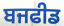
ਬਜਫੀਡ